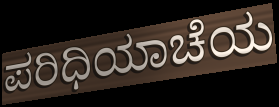
ಪರಿಧಿಯಾಚೆಯ